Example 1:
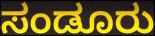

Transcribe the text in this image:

ಸಂಡೂರು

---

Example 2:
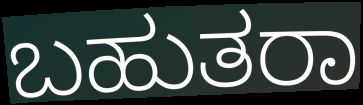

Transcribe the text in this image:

ಬಹುತರಾ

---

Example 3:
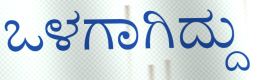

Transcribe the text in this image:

ಒಳಗಾಗಿದ್ದು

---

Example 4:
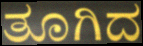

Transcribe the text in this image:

ತೂಗಿದ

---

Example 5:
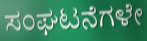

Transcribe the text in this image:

ಸಂಘಟನೆಗಳೇ